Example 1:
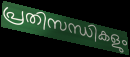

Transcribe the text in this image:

പ്രതിസന്ധികളും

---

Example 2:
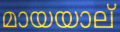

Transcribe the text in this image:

മായയാല്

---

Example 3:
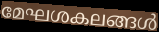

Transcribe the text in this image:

മേഘശകലങ്ങൾ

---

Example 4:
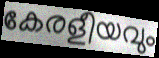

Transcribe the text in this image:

കേരളീയവും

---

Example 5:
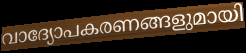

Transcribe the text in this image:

വാദ്യോപകരണങ്ങളുമായി